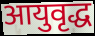
आयुवृद्ध